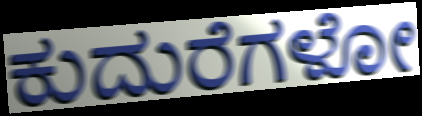
ಕುದುರೆಗಳೋ